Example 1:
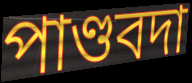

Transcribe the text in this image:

পাণ্ডবদা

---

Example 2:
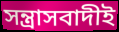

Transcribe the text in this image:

সন্ত্রাসবাদীই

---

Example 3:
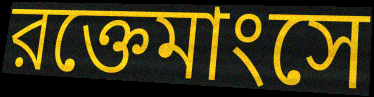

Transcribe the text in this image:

রক্তেমাংসে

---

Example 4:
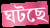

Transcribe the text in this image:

ঘটছে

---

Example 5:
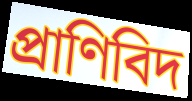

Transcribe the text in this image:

প্রাণিবিদ